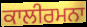
ਕਾਲੀਰਮਨਾ